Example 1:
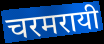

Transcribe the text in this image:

चरमरायी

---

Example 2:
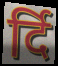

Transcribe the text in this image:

र्दि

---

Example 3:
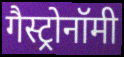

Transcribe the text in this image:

गैस्ट्रोनॉमी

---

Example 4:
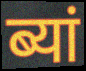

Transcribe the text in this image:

ब्यां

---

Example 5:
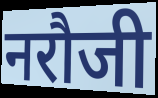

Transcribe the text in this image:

नरौजी